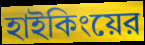
হাইকিংয়ের